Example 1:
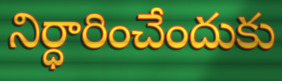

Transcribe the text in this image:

నిర్ధారించేందుకు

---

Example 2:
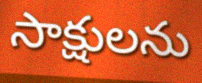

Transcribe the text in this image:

సాక్షులను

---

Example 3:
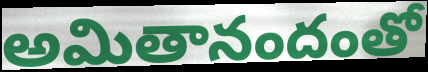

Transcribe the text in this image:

అమితానందంతో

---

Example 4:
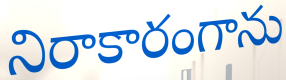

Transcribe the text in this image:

నిరాకారంగాను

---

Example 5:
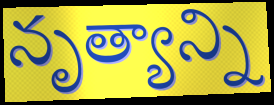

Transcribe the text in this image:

నృత్యాన్ని